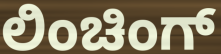
ಲಿಂಚಿಂಗ್